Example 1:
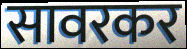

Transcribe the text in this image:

सावरकर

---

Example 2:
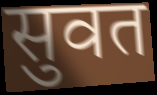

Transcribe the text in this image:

सुवत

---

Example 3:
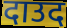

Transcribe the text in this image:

दाउद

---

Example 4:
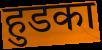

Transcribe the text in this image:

हुडका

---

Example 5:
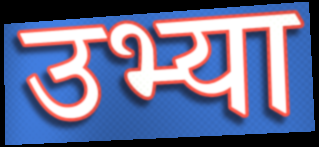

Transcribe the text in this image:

उभ्या